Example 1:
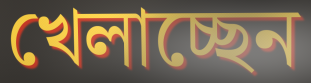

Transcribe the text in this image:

খেলাচ্ছেন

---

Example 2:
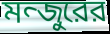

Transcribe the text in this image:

মন্জুরের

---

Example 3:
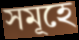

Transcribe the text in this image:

সমূহে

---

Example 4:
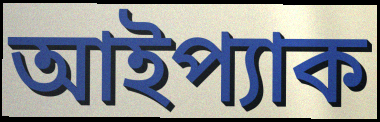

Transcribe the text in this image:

আইপ্যাক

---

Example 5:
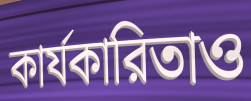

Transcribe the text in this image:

কার্যকারিতাও